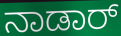
ನಾಡಾರ್